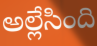
అల్లేసింది